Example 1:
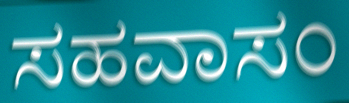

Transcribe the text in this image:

ಸಹವಾಸಂ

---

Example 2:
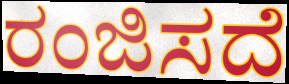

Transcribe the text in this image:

ರಂಜಿಸದೆ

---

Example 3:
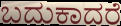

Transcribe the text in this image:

ಬದುಕಾದರೆ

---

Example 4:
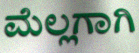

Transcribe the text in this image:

ಮೆಲ್ಲಗಾಗಿ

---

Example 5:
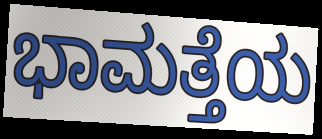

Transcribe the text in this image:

ಭಾಮತ್ತೆಯ